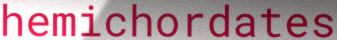
hemichordates